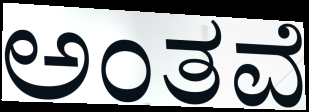
ಅಂತವೆ